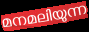
മനമലിയുന്ന